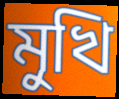
মুখি